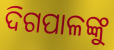
ଦିଗପାଳଙ୍କୁ